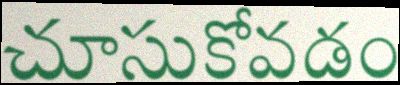
చూసుకోవడం